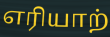
எரியாற்